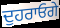
ਦੁਹਰਾਓਗੇ